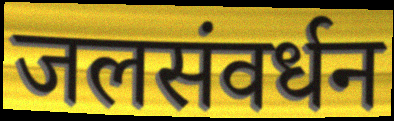
जलसंवर्धन